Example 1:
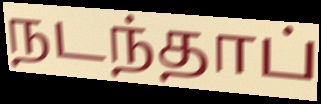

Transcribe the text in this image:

நடந்தாப்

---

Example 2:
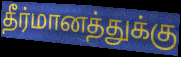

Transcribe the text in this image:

தீர்மானத்துக்கு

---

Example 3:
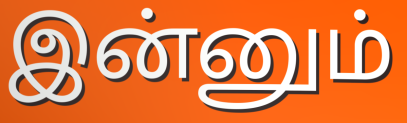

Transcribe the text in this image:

இன்னும்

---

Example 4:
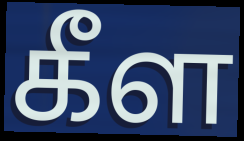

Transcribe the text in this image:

கீள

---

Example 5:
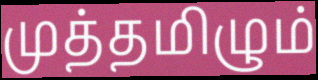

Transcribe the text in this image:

முத்தமிழும்